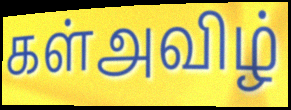
கள்அவிழ்